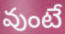
వుంటే